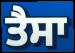
ਤੈਸਾ